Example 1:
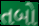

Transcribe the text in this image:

તબો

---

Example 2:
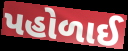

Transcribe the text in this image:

પહોળાઈ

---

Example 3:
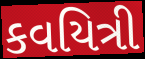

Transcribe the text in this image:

કવયિત્રી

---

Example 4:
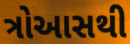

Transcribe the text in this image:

ત્રોઆસથી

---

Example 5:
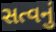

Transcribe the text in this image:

સત્વનું